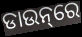
ଡାଉନ୍‌ରେ